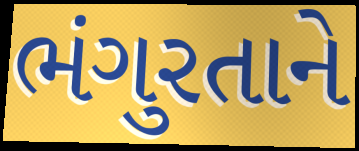
ભંગુરતાને